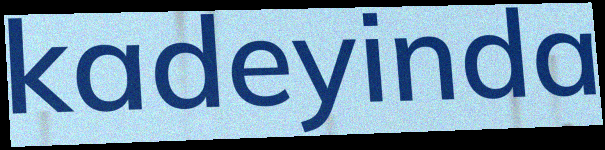
kadeyinda